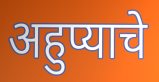
अहुप्याचे